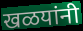
खळयांनी